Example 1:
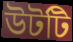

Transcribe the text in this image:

উটটি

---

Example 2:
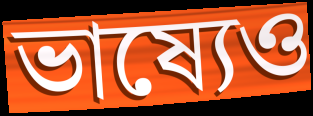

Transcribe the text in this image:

ভাষ্যেও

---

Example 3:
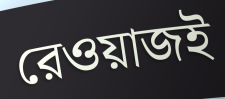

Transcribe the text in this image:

রেওয়াজই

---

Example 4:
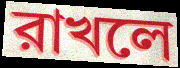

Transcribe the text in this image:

রাখলে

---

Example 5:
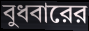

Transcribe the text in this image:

বুধবারের